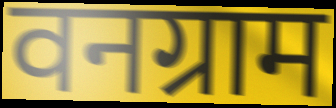
वनग्राम